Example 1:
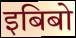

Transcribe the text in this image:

इबिबो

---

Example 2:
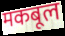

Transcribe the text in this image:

मकबूल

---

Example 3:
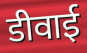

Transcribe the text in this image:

डीवाई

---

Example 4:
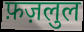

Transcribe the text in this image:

फ़ज़लुल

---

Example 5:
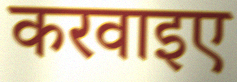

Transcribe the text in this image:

करवाइए